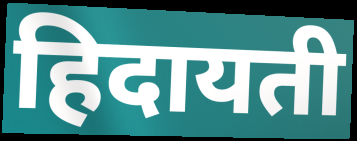
हिदायती